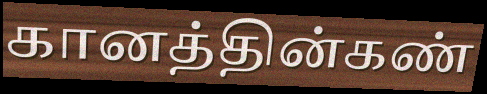
கானத்தின்கண்